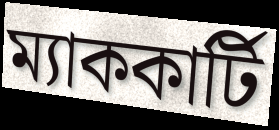
ম্যাককার্টি